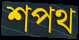
শপথ